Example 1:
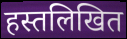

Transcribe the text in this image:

हस्तलिखित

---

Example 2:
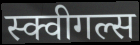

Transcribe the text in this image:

स्क्वीगल्स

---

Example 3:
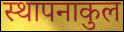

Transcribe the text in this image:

स्थापनाकुल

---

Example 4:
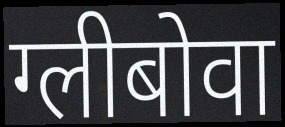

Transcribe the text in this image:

ग्लीबोवा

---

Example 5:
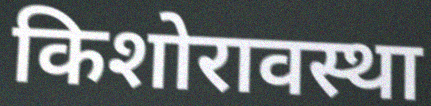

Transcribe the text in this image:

किशोरावस्था